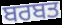
ਬਰਬਤ